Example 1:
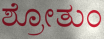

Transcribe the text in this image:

ಶ್ರೋತುಂ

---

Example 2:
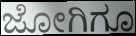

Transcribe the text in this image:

ಜೋಗಿಗೂ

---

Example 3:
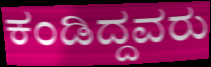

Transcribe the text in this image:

ಕಂಡಿದ್ದವರು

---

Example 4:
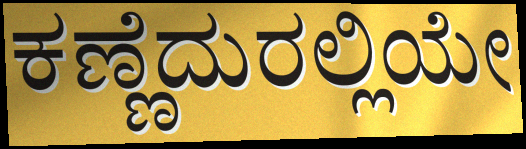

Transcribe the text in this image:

ಕಣ್ಣೆದುರಲ್ಲಿಯೇ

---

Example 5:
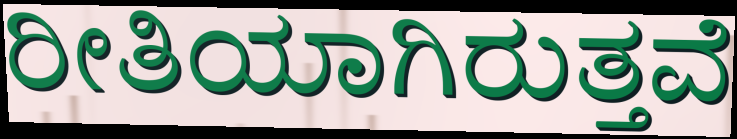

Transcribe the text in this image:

ರೀತಿಯಾಗಿರುತ್ತವೆ